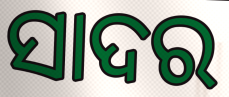
ସାଦର